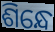
ଶିନ୍ଧେ